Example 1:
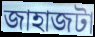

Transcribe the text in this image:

জাহাজটা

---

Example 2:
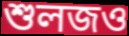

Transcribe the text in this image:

শুলজও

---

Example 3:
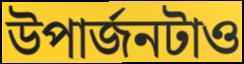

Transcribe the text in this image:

উপার্জনটাও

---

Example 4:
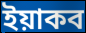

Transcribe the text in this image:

ইয়াকব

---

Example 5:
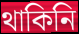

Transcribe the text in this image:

থাকিনি